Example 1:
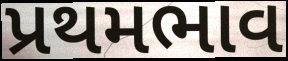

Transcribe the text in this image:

પ્રથમભાવ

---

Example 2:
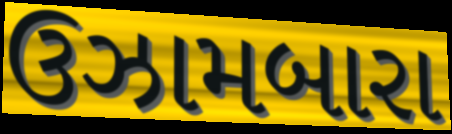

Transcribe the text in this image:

ઉઝામબારા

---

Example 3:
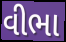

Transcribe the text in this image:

વીભા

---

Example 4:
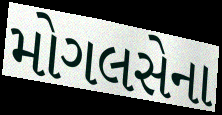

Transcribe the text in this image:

મોગલસેના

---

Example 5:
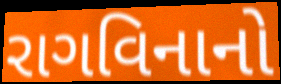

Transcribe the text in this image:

રાગવિનાનો